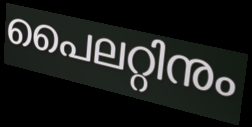
പൈലറ്റിനും